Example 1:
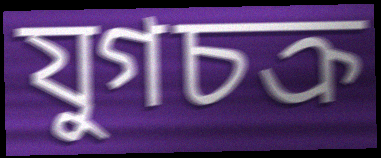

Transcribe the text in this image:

যুগচক্র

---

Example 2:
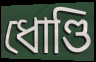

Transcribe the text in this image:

ধোণ্ডি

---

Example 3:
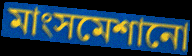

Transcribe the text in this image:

মাংসমেশানো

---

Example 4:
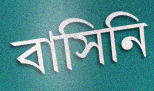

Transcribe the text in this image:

বাসিনি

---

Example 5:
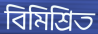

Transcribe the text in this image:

বিমিশ্রিত